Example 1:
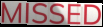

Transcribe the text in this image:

MISSED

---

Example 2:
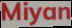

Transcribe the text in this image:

Miyan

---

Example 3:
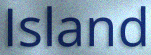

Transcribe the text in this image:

Island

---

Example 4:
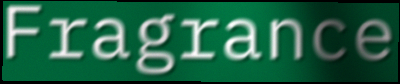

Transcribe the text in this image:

Fragrance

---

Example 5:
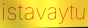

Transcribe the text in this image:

istavaytu